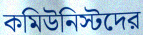
কমিউনিস্টদের